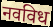
नवविध